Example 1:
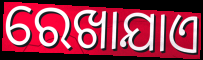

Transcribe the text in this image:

ରେଖାଯାଏ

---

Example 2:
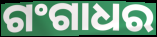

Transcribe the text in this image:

ଗଂଗାଧର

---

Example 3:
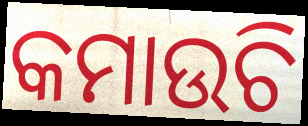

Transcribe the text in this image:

କମାଉଚି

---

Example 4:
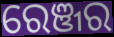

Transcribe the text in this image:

ରେଞ୍ଜର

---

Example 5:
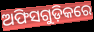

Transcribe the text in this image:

ଅଫିସଗୁଡ଼ିକରେ